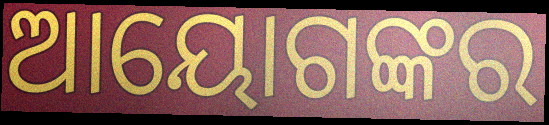
ଆୟୋଗଙ୍କର